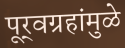
पूर्वग्रहांमुळे